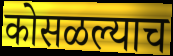
कोसळल्याच